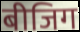
बीजिग